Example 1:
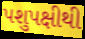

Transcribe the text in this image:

પશુપક્ષીથી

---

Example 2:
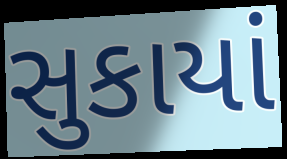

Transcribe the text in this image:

સુકાયાં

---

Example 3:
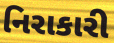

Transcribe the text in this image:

નિરાકારી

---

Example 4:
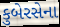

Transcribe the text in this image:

કુબેરસેના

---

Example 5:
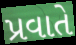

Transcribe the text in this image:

પ્રવાતે